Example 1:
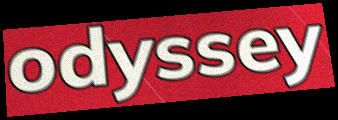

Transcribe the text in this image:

odyssey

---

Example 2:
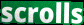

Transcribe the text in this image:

scrolls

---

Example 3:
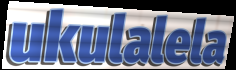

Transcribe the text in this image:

ukulalela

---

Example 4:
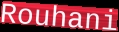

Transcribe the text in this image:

Rouhani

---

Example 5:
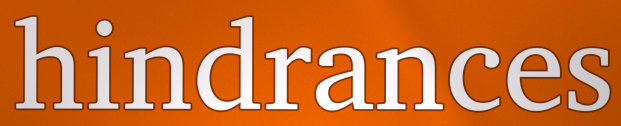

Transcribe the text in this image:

hindrances